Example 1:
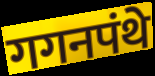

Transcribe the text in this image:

गगनपंथे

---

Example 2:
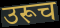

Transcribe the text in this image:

उरूच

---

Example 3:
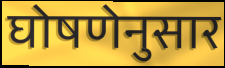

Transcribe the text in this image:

घोषणेनुसार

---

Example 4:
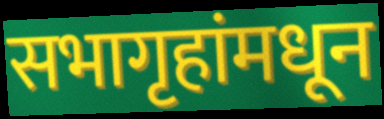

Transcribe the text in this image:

सभागृहांमधून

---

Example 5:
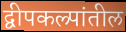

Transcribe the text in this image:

द्वीपकल्पांतील